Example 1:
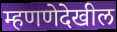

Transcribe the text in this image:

म्हणणेदेखील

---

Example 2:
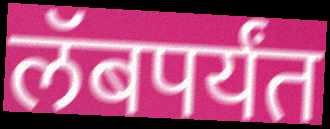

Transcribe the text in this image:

लॅबपर्यंत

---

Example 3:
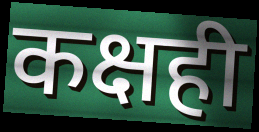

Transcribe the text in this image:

कक्षही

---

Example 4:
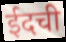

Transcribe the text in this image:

ईदची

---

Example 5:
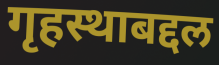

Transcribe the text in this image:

गृहस्थाबद्दल